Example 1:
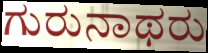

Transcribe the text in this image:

ಗುರುನಾಥರು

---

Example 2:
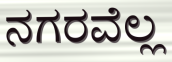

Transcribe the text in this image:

ನಗರವೆಲ್ಲ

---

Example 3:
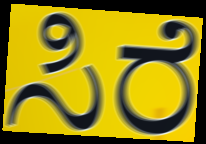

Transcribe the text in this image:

ಸಿರೆ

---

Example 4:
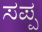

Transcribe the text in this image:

ಸಪ್ಪ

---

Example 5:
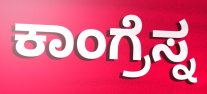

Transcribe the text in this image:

ಕಾಂಗ್ರೆಸ್ನ